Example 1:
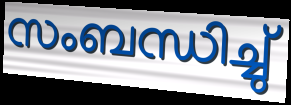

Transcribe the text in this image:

സംബന്ധിച്ചു്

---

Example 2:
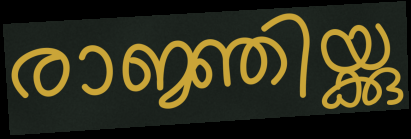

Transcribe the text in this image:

രാജ്ഞിയ്ക്കു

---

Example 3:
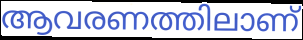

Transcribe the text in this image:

ആവരണത്തിലാണ്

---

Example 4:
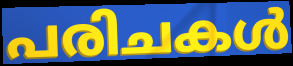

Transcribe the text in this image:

പരിചകൾ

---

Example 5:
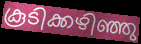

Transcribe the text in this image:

കൂടിക്കഴിഞ്ഞു